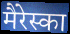
मैरेस्का